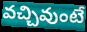
వచ్చివుంటే